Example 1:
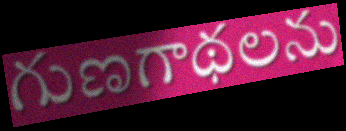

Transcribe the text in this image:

గుణగాథలను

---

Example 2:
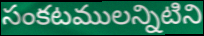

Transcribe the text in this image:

సంకటములన్నిటిని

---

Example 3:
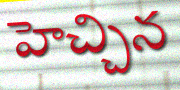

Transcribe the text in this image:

హెచ్చిన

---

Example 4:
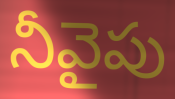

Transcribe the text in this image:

నీవైపు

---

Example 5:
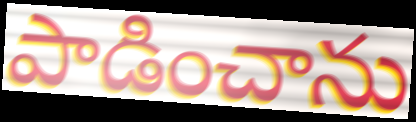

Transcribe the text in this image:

పాడించాను